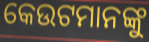
କେଉଟମାନଙ୍କୁ